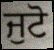
ਜੁਟੋ